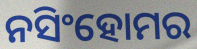
ନସିଂହୋମର